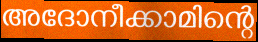
അദോനീക്കാമിന്റെ